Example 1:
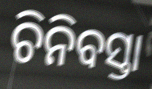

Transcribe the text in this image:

ଚିନିବସ୍ତା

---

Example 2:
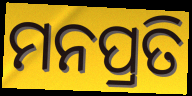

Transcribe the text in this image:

ମନପ୍ରତି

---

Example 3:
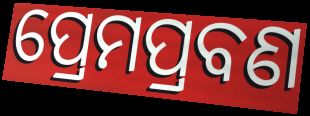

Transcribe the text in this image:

ପ୍ରେମପ୍ରବଣ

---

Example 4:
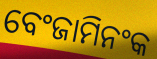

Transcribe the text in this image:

ବେଂଜାମିନଂକ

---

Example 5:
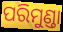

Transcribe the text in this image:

ପରିମୁଣ୍ଡା